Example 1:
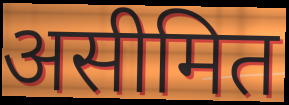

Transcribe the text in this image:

असीमित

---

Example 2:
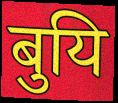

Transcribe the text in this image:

बुयि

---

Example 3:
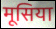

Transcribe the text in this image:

मूसिया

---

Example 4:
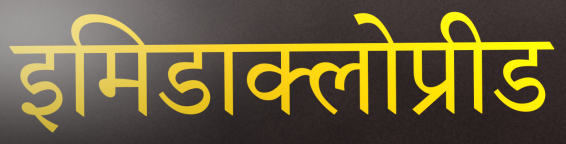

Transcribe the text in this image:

इमिडाक्लोप्रीड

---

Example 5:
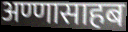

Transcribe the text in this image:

अण्णासाहब